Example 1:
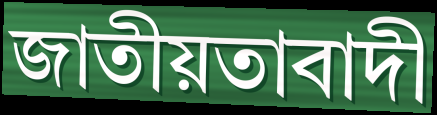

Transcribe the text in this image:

জাতীয়তাবাদী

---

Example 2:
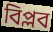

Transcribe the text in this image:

বিপ্লব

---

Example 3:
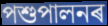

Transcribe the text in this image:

পশুপালনৰ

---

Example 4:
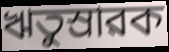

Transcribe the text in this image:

ঋতুস্ৰাৱক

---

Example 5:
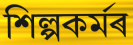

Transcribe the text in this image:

শিল্পকৰ্মৰ